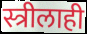
स्त्रीलाही